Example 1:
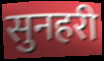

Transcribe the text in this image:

सुनहरी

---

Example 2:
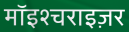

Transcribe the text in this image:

मॉइश्चराइज़र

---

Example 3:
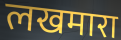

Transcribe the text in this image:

लखमारा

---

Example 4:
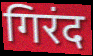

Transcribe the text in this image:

गिरंद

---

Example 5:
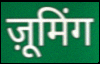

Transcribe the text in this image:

ज़ूमिंग